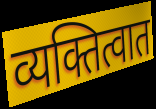
व्यक्तित्वात